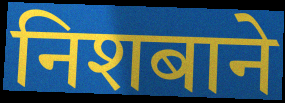
निशबाने